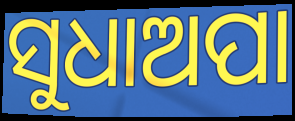
ସୁଧାଅପା